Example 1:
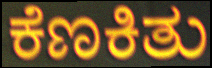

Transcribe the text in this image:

ಕೆಣಕಿತು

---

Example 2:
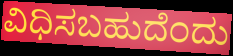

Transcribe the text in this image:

ವಿಧಿಸಬಹುದೆಂದು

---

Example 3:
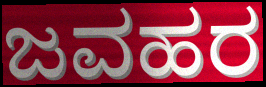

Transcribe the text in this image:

ಜವಹರ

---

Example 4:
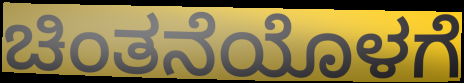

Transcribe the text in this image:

ಚಿಂತನೆಯೊಳಗೆ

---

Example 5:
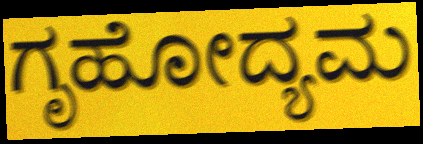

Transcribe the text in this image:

ಗೃಹೋದ್ಯಮ